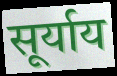
सूर्याय